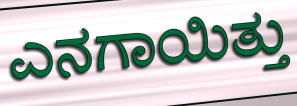
ಎನಗಾಯಿತ್ತು